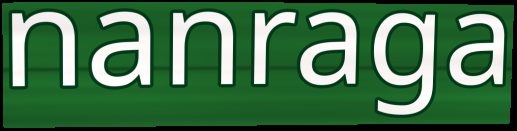
nanraga